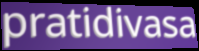
pratidivasa